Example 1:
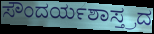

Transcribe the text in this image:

ಸೌಂದರ್ಯಶಾಸ್ತ್ರದ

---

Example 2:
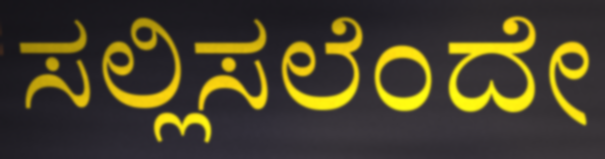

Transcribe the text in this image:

ಸಲ್ಲಿಸಲೆಂದೇ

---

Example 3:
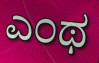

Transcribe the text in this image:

ಎಂಥ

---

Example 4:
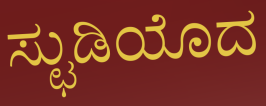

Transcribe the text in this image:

ಸ್ಟುಡಿಯೊದ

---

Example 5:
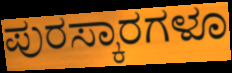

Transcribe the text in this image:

ಪುರಸ್ಕಾರಗಳೂ